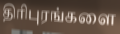
திரிபுரங்களை